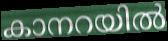
കാനറയിൽ